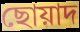
ছোয়াদ